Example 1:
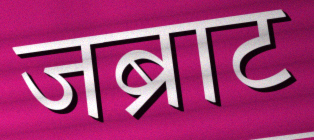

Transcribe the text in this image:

जब्राट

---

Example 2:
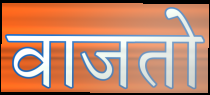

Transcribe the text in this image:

वाजतो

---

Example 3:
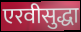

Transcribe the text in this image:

एरवीसुद्धा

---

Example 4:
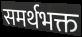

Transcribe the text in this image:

समर्थभक्त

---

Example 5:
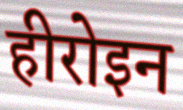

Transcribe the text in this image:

हीरोइन